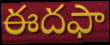
ఈదఫా